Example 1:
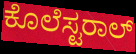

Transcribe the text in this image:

ಕೊಲೆಸ್ಟರಾಲ್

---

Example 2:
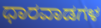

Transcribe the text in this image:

ಧಾರವಾಡಗಳ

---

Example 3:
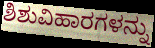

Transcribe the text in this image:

ಶಿಶುವಿಹಾರಗಳನ್ನು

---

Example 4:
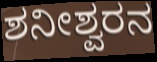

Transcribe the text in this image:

ಶನೀಶ್ವರನ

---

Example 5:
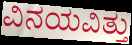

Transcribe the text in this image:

ವಿನಯವಿತ್ತು